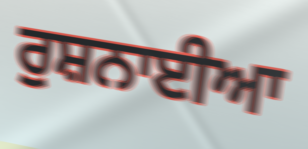
ਰੁਸ਼ਨਾਈਆ